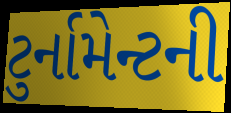
ટુર્નામેન્ટની